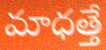
మాధత్తే